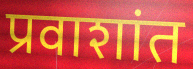
प्रवाशांत